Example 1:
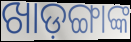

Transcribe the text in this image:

ଖାଡ଼ଙ୍ଗାଙ୍କ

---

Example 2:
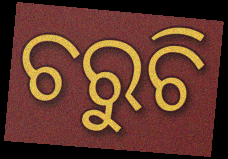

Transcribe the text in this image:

ଚରୁଚି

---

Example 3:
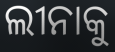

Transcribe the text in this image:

ଲୀନାକୁ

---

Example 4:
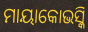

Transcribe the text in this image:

ମାୟାକୋଭସ୍କି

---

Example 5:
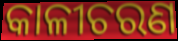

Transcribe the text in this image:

କାଳୀଚରଣ